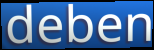
deben